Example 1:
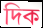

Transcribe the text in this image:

দিক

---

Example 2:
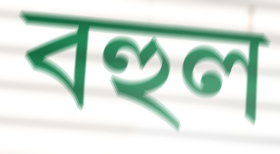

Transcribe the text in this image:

বহুল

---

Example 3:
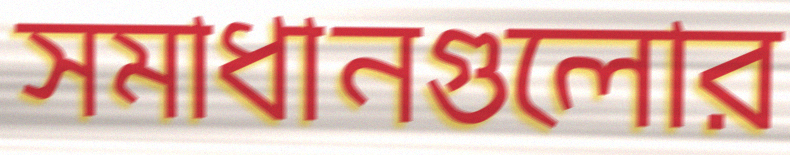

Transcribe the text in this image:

সমাধানগুলোর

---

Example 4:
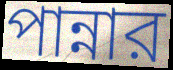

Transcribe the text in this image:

পান্নার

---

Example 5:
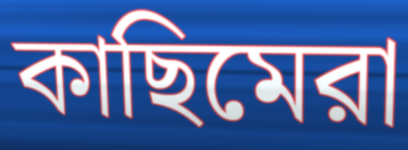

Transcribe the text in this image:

কাছিমেরা